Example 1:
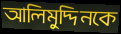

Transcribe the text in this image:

আলিমুদ্দিনকে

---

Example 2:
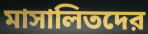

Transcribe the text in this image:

মাসালিতদের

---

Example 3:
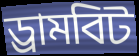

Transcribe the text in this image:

ড্রামবিট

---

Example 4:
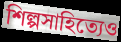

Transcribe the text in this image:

শিল্পসাহিত্যেও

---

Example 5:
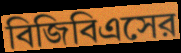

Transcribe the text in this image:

বিজিবিএসের